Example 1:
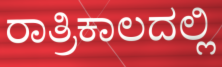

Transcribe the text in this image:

ರಾತ್ರಿಕಾಲದಲ್ಲಿ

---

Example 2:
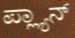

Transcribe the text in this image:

ಪ್ಲ್ಯಾನ್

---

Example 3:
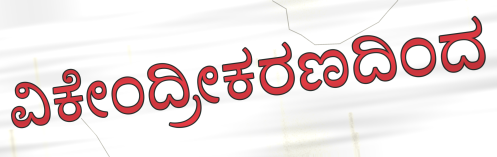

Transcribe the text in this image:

ವಿಕೇಂದ್ರೀಕರಣದಿಂದ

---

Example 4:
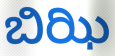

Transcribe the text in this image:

ಬಿಝಿ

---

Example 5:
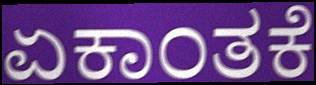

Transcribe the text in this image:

ಏಕಾಂತಕೆ